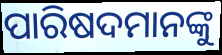
ପାରିଷଦମାନଙ୍କୁ